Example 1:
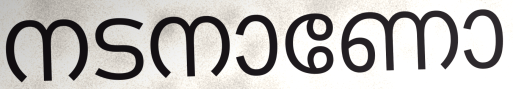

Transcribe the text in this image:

നടനാണോ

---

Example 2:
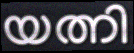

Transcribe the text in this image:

യത്നി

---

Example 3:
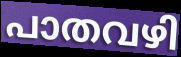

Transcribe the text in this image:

പാതവഴി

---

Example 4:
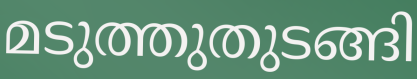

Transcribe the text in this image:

മടുത്തുതുടങ്ങി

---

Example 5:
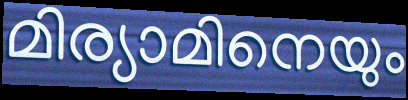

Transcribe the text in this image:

മിര്യാമിനെയും